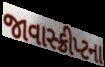
જાવાસ્ક્રીપ્ટના